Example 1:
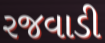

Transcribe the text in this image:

રજવાડી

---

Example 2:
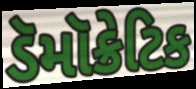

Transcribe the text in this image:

ડૅમૉક્રેટિક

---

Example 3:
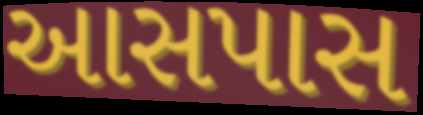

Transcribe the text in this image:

આસપાસ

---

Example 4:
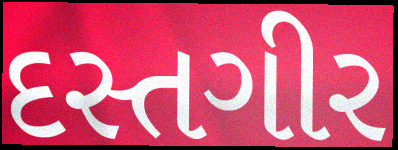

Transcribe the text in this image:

દસ્તગીર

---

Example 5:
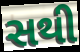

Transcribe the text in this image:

સથી